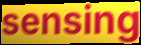
sensing